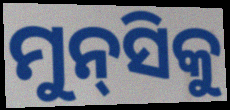
ମୁନ୍‌ସିକୁ